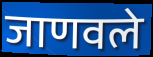
जाणवले